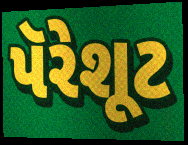
પૅરેશૂટ